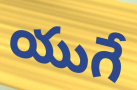
యుగే